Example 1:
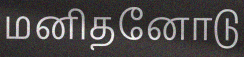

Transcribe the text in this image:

மனிதனோடு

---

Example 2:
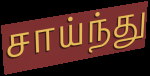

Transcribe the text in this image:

சாய்ந்து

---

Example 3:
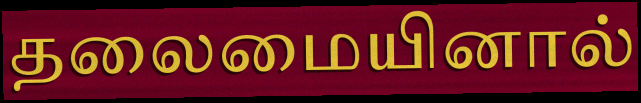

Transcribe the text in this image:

தலைமையினால்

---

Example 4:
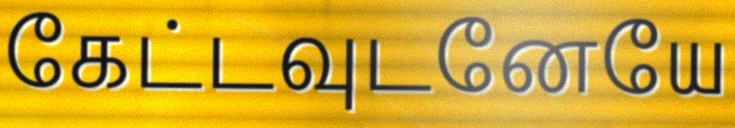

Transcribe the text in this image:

கேட்டவுடனேயே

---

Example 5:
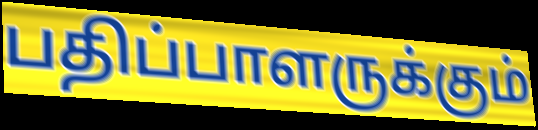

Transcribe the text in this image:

பதிப்பாளருக்கும்